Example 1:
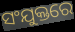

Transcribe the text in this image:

ସଂଯୁକ୍ତରେ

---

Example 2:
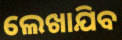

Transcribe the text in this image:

ଲେଖାଯିବ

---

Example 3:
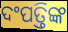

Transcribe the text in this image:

ଦଂପତ୍ତିଙ୍କ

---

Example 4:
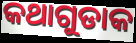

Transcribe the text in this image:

କଥାଗୁଡାକ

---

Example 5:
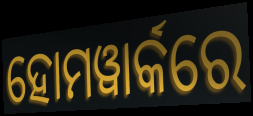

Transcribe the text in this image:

ହୋମୱାର୍କରେ